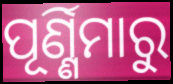
ପୂର୍ଣ୍ଣିମାରୁ